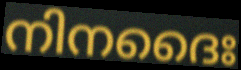
നിനദൈഃ